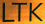
LTK